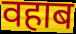
वहाब